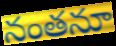
నంతనూ